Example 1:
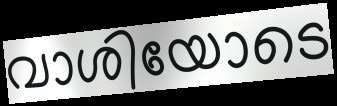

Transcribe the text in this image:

വാശിയോടെ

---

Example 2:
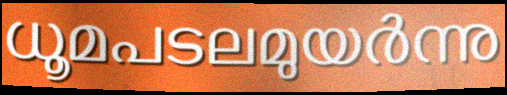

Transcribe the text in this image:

ധൂമപടലമുയർന്നു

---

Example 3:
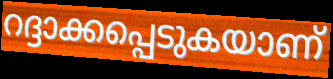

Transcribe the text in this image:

റദ്ദാക്കപ്പെടുകയാണ്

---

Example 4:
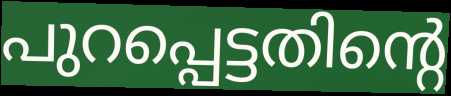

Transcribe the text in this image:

പുറപ്പെട്ടതിന്റെ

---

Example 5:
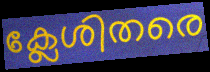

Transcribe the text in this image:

ക്ലേശിതരെ